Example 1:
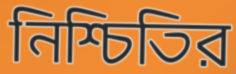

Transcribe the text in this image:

নিশ্চিতির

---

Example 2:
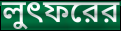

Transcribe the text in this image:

লুৎফরের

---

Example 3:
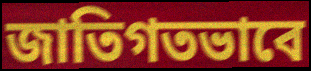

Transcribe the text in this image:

জাতিগতভাবে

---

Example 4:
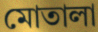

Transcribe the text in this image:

মোতালা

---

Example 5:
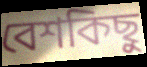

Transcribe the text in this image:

বেশকিছু